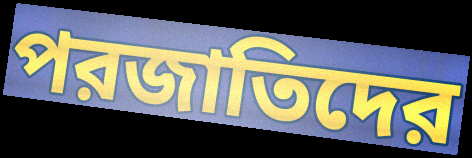
পরজাতিদের